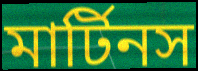
মার্টিনস